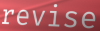
revise